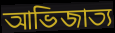
আভিজাত্য